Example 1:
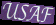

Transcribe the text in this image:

USAF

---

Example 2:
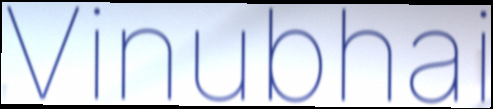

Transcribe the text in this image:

Vinubhai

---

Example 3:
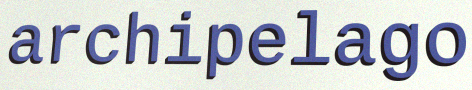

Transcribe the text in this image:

archipelago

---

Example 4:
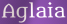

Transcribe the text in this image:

Aglaia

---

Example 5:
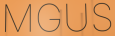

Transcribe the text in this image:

MGUS